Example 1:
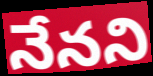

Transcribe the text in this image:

నేనని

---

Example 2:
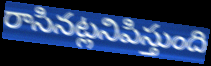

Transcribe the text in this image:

రాసినట్లనిపిస్తుంది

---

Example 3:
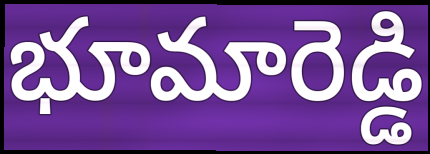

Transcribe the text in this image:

భూమారెడ్డి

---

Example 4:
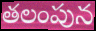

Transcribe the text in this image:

తలంపున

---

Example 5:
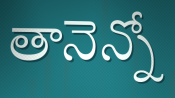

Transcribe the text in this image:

తానెన్నో